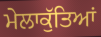
ਮੇਲਾਕੁੱਤਿਆਂ